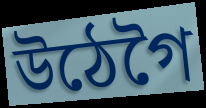
উঠেগৈ